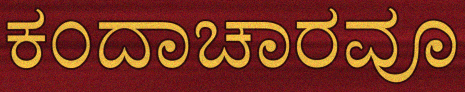
ಕಂದಾಚಾರವೂ